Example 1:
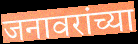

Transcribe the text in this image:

जनावरांच्या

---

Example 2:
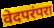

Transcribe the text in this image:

वेदपरंपरा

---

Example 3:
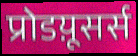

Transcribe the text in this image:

प्रोडय़ूसर्स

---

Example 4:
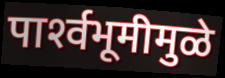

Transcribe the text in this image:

पार्श्वभूमीमुळे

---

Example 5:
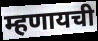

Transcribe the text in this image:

म्हणायची